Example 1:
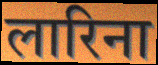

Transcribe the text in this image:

लारिना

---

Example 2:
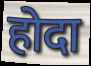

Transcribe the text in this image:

होदा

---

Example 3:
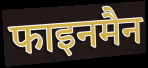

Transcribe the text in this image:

फाइनमैन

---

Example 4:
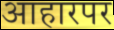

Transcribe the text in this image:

आहारपर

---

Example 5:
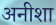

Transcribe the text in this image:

अनीशा